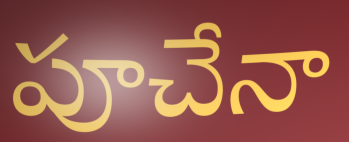
పూచేనా